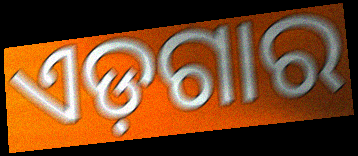
ଏଡ଼ଗାର